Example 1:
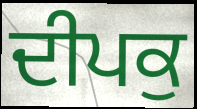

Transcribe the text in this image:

ਦੀਪਕੁ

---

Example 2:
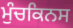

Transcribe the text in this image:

ਮੁੰਚਕਿਨਸ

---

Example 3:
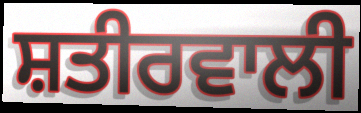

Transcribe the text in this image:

ਸ਼ਤੀਰਵਾਲੀ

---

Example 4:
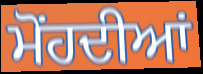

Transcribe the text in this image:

ਮੋਂਹਦੀਆਂ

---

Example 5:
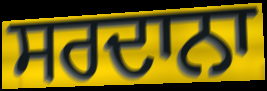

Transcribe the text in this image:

ਸਰਦਾਨਾ